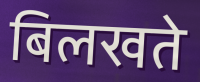
बिलखते